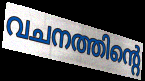
വചനത്തിന്റെ